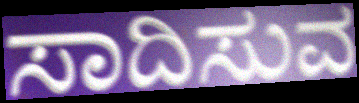
ಸಾದಿಸುವ